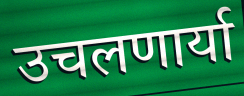
उचलणार्या